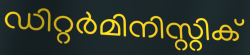
ഡിറ്റർമിനിസ്റ്റിക്